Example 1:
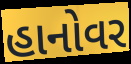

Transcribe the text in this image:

હાનોવર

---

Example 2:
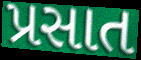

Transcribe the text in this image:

પ્રસાત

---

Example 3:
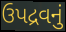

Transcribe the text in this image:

ઉપદ્રવનું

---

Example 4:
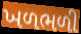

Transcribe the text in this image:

ખળભળી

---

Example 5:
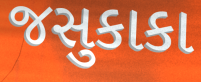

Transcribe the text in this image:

જસુકાકા